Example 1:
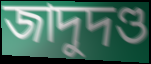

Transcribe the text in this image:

জাদুদণ্ড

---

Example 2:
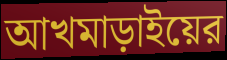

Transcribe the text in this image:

আখমাড়াইয়ের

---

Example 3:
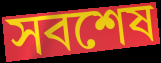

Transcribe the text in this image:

সবশেষ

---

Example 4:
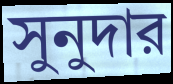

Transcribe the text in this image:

সুনুদার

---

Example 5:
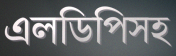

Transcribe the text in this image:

এলডিপিসহ